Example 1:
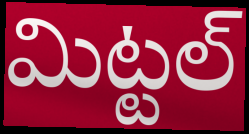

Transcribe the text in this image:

మిట్టల్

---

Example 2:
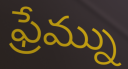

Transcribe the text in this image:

ఫ్రేమ్ను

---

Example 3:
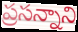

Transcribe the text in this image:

ప్రసన్నాని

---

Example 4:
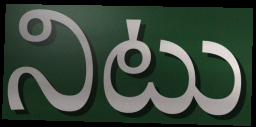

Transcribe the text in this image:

నిటు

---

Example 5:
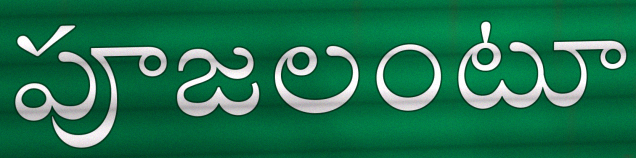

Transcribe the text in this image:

పూజలంటూ